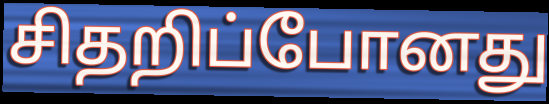
சிதறிப்போனது